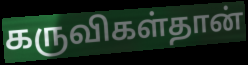
கருவிகள்தான்